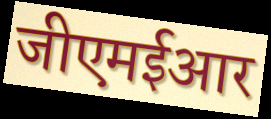
जीएमईआर